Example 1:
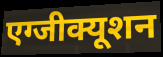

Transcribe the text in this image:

एग्जीक्यूशन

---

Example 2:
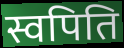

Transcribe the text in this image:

स्वपिति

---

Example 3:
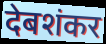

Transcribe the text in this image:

देबशंकर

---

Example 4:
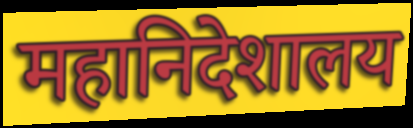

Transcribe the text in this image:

महानिदेशालय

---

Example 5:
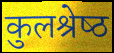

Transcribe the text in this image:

कुलश्रेष्‍ठ